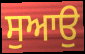
ਸੁਆਉ